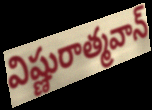
విష్ణురాత్మవాన్